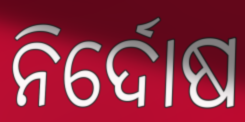
ନିର୍ଦୋଷ